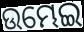
ଉମ୍ଭେଇ